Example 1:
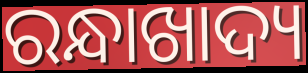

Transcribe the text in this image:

ରନ୍ଧାଖାଦ୍ୟ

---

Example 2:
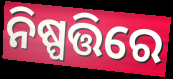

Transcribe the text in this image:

ନିଷ୍ପତ୍ତିରେ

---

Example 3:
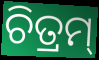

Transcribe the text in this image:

ଚିତ୍ରମ୍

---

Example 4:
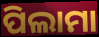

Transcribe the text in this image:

ପିଲାମା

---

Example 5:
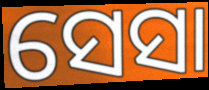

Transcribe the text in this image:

ସେସା